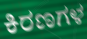
ಕಿರಣಗಳ